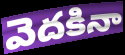
వెదకినా